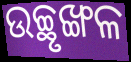
ଉଚ୍ଛୃଙ୍ଖଳ